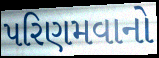
પરિણમવાનો